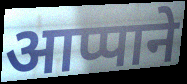
आप्पाने